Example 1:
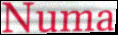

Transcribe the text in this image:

Numa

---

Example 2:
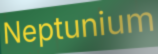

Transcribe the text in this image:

Neptunium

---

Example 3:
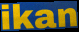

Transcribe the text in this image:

ikan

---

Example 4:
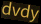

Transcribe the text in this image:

dvdy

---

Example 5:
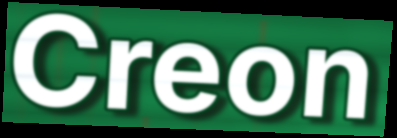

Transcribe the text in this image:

Creon